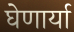
घेणार्या